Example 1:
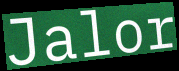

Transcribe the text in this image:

Jalor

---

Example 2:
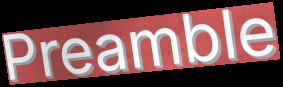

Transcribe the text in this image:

Preamble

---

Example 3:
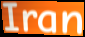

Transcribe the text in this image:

Iran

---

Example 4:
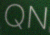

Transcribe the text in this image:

QN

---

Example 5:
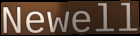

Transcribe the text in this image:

Newell